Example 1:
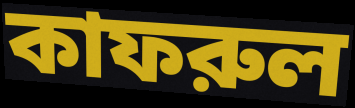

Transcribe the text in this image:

কাফরুল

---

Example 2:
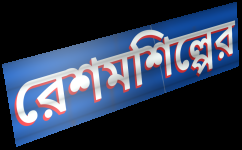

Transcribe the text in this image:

রেশমশিল্পের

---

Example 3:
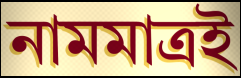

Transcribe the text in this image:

নামমাত্রই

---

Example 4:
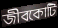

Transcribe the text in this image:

জীবকোটি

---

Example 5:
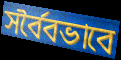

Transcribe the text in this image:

সর্বৈবভাবে